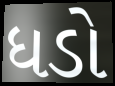
ધડો